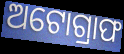
ଅଟୋଗ୍ରାଫ